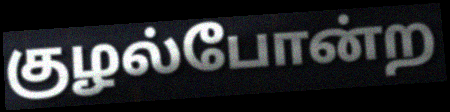
குழல்போன்ற